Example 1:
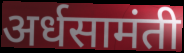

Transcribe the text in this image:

अर्धसामंती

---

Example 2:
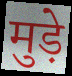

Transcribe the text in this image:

मुड़े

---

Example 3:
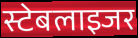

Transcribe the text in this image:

स्टेबलाइजर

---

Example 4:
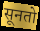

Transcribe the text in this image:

सूनतो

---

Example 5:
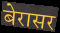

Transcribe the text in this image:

बेरासर